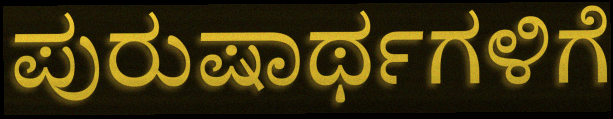
ಪುರುಷಾರ್ಥಗಳಿಗೆ